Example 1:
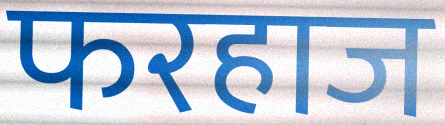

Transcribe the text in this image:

फरहाज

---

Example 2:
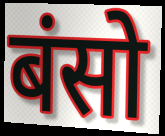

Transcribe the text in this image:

बंसो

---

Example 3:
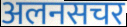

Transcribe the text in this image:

अलनसचर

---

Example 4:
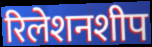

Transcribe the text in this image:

रिलेशनशीप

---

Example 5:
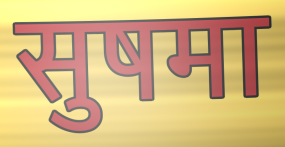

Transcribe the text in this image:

सुषमा